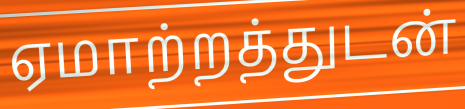
ஏமாற்றத்துடன்